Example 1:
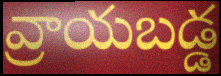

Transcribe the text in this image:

వ్రాయబడ్డ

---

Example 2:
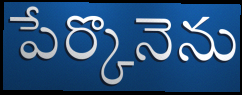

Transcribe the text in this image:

పేర్కొనెను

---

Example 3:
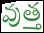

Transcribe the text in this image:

వుత్త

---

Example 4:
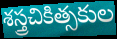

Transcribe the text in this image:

శస్త్రచికిత్సకుల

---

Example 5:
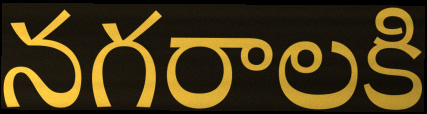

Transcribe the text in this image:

నగరాలకి